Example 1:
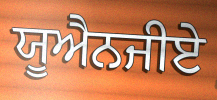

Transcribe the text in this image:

ਯੂਐਨਜੀਏ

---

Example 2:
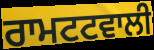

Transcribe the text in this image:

ਰਾਮਟਟਵਾਲੀ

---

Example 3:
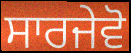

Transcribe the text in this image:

ਸਾਰਜੇਵੋ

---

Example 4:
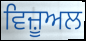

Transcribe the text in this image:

ਵਿਜ਼ੂਅਲ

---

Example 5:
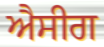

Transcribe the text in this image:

ਐਸੀਗ